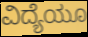
ವಿದ್ಯೆಯೂ